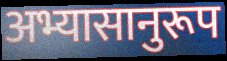
अभ्यासानुरूप